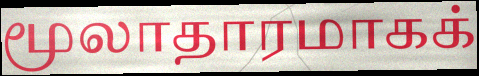
மூலாதாரமாகக்